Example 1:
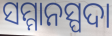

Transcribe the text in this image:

ସମ୍ମାନସ୍ପଦା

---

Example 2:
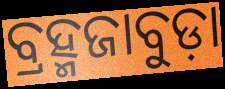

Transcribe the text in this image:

ବ୍ରହ୍ମଜାବୁଡ଼ା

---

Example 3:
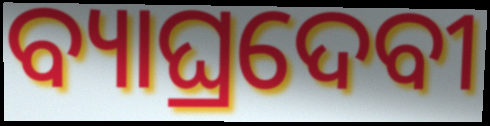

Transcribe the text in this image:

ବ୍ୟାଘ୍ରଦେବୀ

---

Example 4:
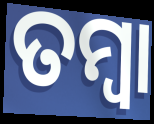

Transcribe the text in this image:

ତମ୍ୱା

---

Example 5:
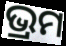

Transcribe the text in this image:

ଭ୍ରମ